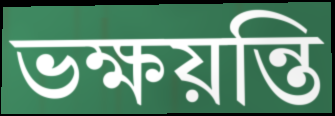
ভক্ষয়ন্তি